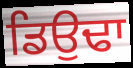
ਡਿਉਢਾ